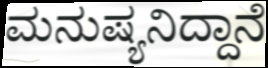
ಮನುಷ್ಯನಿದ್ದಾನೆ